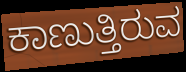
ಕಾಣುತ್ತಿರುವ